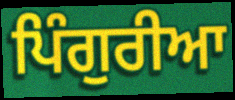
ਪਿੰਗੁਰੀਆ